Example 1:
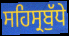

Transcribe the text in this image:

ਸਹਿਸ੍ਰਬੁੱਧੇ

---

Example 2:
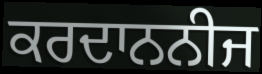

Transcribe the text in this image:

ਕਰਦਾਨਨੀਜ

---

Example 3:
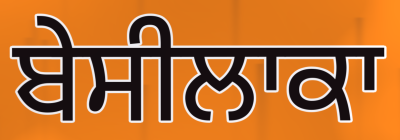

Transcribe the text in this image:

ਬੇਸੀਲਾਕਾ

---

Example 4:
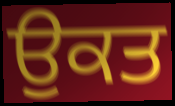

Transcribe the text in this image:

ਉੁਕਤ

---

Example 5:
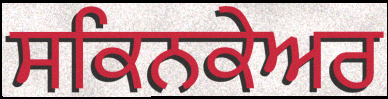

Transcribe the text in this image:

ਸਕਿਨਕੇਅਰ